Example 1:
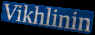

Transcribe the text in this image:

Vikhlinin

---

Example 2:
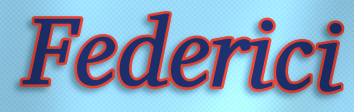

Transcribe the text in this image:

Federici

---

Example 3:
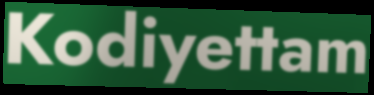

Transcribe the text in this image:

Kodiyettam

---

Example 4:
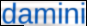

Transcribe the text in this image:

damini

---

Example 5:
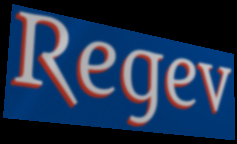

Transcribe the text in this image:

Regev